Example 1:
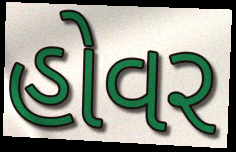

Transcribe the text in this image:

હોવર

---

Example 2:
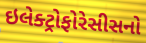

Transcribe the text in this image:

ઇલેક્ટ્રોફોરેસીસનો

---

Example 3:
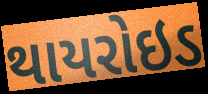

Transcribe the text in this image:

થાયરોઇડ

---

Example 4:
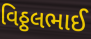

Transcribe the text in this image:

વિઠ્ઠલભાઈ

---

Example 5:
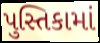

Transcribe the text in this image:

પુસ્તિકામાં